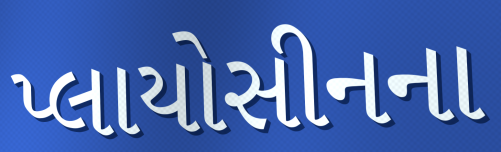
પ્લાયોસીનના